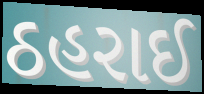
ઠહરાઈ